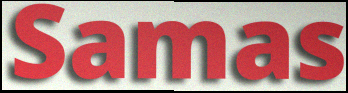
Samas